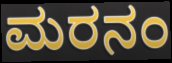
ಮರನಂ